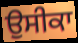
ਉਸੀਕਾ